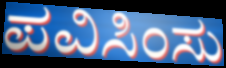
ಪವಿಸಿಂಸು